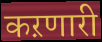
कऱणारी